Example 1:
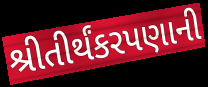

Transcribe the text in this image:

શ્રીતીર્થંકરપણાની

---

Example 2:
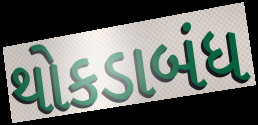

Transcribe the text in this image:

થોકડાબંધ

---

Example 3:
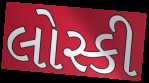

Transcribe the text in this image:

લોસ્કી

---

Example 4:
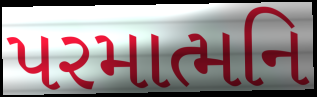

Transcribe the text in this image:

પરમાત્મનિ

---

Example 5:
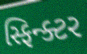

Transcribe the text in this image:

સ્ફિન્ક્ટર